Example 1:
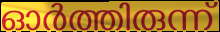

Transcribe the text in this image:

ഓർത്തിരുന്ന്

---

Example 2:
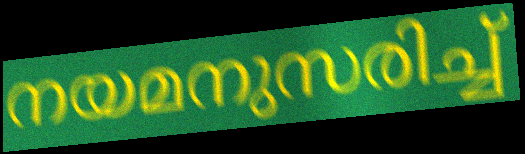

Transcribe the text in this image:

നയമനുസരിച്ച്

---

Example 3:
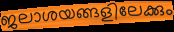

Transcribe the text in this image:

ജലാശയങ്ങളിലേക്കും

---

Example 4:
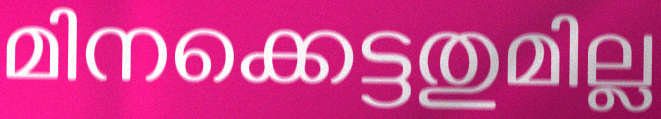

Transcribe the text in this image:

മിനക്കെട്ടതുമില്ല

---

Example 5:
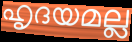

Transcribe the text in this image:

ഹൃദയമല്ല